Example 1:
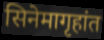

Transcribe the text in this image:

सिनेमागृहांत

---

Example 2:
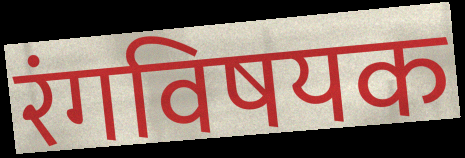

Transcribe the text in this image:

रंगविषयक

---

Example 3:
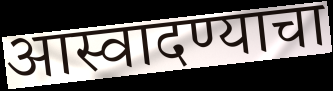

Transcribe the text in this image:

आस्वादण्याचा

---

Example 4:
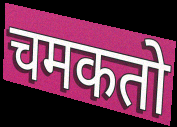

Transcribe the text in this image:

चमकतो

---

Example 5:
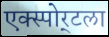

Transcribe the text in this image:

एक्स्पोर्टला